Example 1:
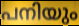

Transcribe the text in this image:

പനിയും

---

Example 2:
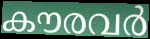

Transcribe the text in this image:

കൗരവർ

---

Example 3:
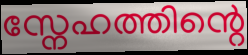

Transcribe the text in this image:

സ്നേഹത്തിന്റെ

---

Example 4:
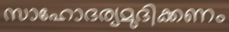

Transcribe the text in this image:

സാഹോദര്യമുദിക്കണം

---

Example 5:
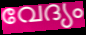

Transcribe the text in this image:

വേദ്യം